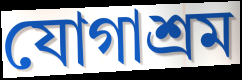
যোগাশ্রম